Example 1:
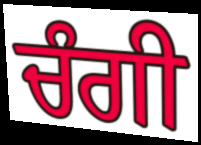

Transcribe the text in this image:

ਚੰਗੀ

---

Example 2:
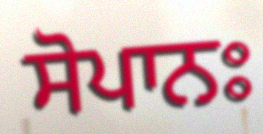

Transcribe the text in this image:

ਸੋਪਾਨਃ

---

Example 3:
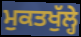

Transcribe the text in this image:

ਮੁਕਤਖੁੱਲ੍ਹੇ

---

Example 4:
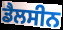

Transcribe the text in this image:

ਡੈਲਸੀਨ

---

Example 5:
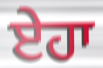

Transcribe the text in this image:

ਏਹਾ